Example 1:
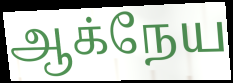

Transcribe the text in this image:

ஆக்நேய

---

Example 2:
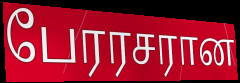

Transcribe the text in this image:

பேரரசரான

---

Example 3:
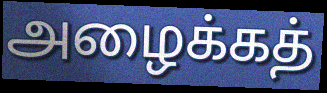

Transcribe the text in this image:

அழைக்கத்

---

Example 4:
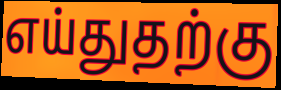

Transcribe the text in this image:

எய்துதற்கு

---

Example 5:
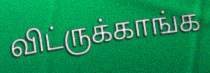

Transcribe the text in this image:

விட்ருக்காங்க